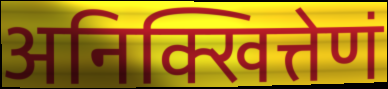
अनिक्खित्तेणं